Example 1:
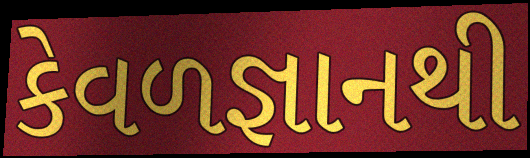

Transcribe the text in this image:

કેવળજ્ઞાનથી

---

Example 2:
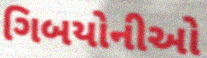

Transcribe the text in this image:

ગિબયોનીઓ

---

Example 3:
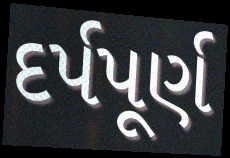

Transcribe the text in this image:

દર્પપૂર્ણ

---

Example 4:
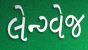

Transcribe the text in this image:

લેન્ગ્વેજ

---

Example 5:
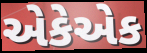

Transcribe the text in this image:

એકેએક